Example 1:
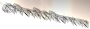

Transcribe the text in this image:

টেলিকমিউনিকেশনের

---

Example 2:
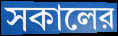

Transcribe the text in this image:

সকালের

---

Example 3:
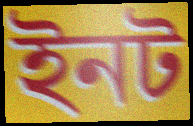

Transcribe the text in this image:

ইনট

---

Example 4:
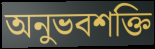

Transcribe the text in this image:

অনুভবশক্তি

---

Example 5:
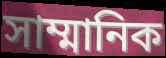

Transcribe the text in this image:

সাম্মানিক